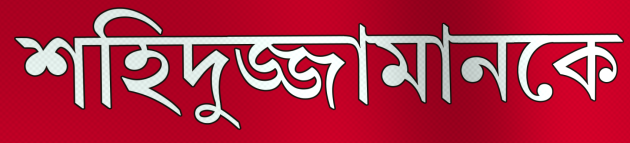
শহিদুজ্জামানকে